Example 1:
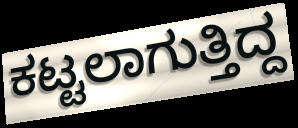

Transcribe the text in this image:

ಕಟ್ಟಲಾಗುತ್ತಿದ್ದ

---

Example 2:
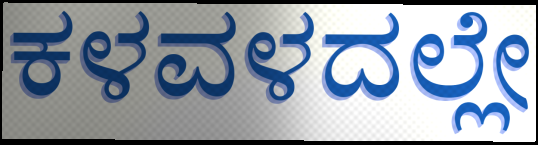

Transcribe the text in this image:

ಕಳವಳದಲ್ಲೇ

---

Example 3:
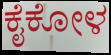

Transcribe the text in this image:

ಕೈಕೋಳ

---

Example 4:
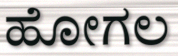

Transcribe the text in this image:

ಹೋಗಲ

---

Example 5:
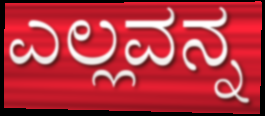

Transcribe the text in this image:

ಎಲ್ಲವನ್ನ